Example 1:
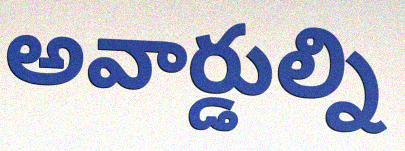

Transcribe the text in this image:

అవార్డుల్ని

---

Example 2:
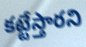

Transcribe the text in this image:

కట్టేస్తారని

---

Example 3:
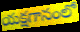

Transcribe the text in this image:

యక్షగానంలో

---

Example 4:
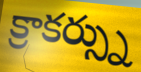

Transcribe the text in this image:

క్రాకర్స్ను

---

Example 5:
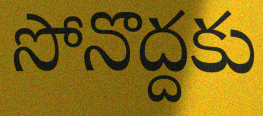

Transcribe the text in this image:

సోనొద్దకు